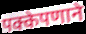
पक्केपणाने